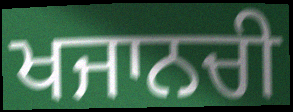
ਖਜਾਨਚੀ